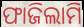
ଫାଜିଲାମି